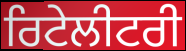
ਰਿਟੇਲੀਟਰੀ